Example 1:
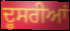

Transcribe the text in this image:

ਦੂਸਰੀਆਂ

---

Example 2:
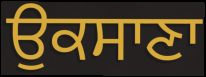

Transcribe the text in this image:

ਉਕਸਾਣਾ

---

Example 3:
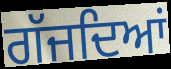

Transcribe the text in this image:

ਗੱਜਦਿਆਂ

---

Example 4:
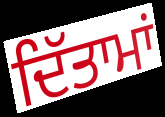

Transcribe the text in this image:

ਦਿੱਤਾਮਾਂ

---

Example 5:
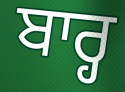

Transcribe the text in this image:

ਬਾਰ੍ਹ